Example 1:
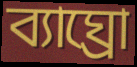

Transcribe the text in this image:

ব্যাঘ্রো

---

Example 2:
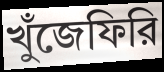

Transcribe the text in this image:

খুঁজেফিরি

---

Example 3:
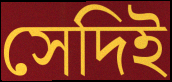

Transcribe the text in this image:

সেদিই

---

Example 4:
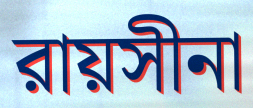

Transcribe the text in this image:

রায়সীনা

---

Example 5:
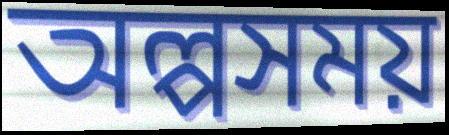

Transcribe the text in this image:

অল্পসময়